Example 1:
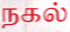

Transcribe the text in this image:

நகல்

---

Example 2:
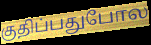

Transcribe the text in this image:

குதிப்பதுபோல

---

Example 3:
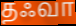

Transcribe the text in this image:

தஃவா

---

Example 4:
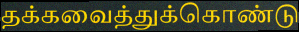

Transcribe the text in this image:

தக்கவைத்துக்கொண்டு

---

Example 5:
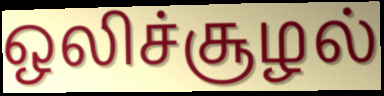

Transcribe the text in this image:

ஒலிச்சூழல்